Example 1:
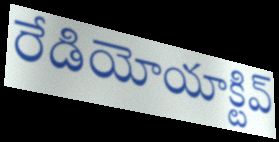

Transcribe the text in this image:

రేడియోయాక్టివ్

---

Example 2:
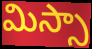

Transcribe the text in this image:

మిస్సా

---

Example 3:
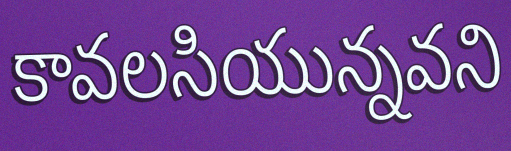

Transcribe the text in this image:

కావలసియున్నవని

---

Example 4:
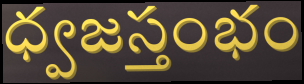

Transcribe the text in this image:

ధ్వజస్తంభం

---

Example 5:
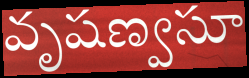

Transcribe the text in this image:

వృషణ్వసూ